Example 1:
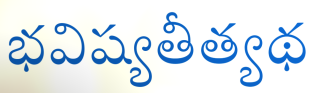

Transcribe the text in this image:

భవిష్యతీత్యథ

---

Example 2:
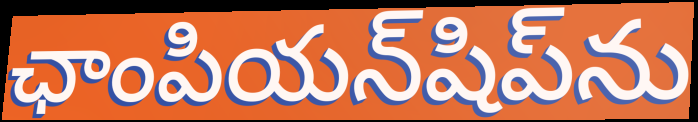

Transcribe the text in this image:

ఛాంపియన్‌షిప్‌ను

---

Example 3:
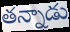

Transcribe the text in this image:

తన్నాడు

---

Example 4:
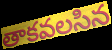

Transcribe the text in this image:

తాకవలసిన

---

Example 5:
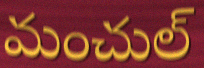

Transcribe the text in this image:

మంచుల్